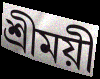
শ্রীময়ী